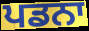
ਪਡਨਾ